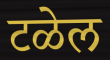
टळेल